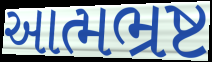
આત્મભ્રષ્ટ